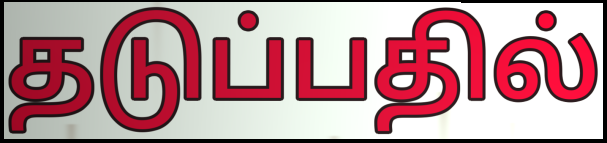
தடுப்பதில்